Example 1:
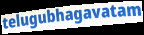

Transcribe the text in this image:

telugubhagavatam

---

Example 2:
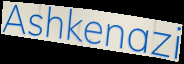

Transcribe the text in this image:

Ashkenazi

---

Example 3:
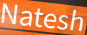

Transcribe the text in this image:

Natesh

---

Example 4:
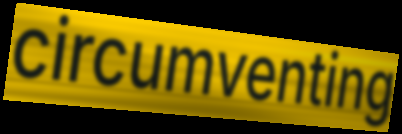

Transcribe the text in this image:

circumventing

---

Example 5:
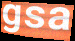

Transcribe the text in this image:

gsa